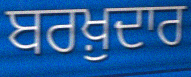
ਬਰਖ਼ੁਦਾਰ